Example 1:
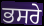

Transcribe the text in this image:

ਭਸਰੇ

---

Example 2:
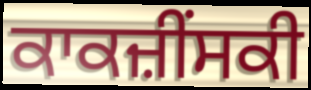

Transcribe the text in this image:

ਕਾਕਜ਼ੀੰਸਕੀ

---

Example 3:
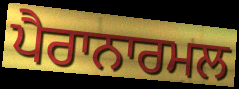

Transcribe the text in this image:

ਪੈਰਾਨਾਰਮਲ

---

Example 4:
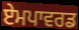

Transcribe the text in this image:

ਏਮਪਾਵਰਡ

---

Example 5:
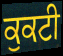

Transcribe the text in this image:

ਕੁਕਟੀ